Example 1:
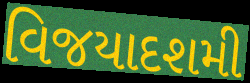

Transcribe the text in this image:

વિજયાદશમી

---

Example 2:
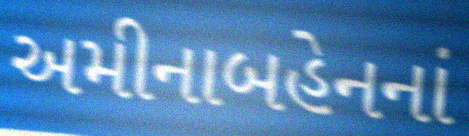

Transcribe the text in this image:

અમીનાબહેનનાં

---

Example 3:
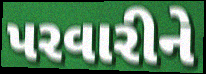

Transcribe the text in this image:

પરવારીને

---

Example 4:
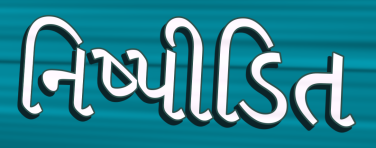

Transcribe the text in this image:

નિષ્પીડિત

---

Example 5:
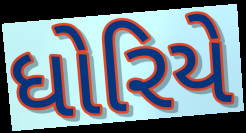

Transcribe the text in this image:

ધોરિયે